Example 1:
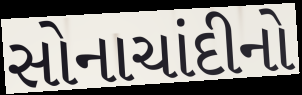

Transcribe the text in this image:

સોનાચાંદીનો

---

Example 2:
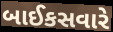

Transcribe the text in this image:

બાઈકસવારે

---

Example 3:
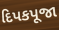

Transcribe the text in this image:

દિપકપૂજા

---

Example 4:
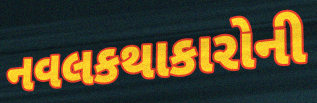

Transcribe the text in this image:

નવલકથાકારોની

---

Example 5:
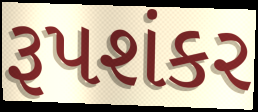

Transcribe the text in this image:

રૂપશંકર